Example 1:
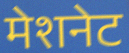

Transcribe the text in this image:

मेशनेट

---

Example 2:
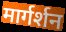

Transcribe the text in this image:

मार्गर्शन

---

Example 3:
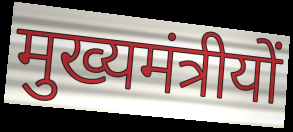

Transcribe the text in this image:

मुख्यमंत्रीयों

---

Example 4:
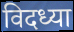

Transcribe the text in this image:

विदध्या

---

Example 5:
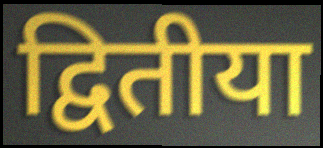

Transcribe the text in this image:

द्वितीया